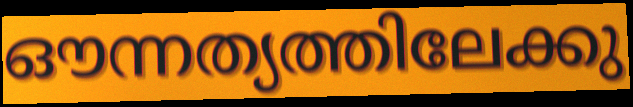
ഔന്നത്യത്തിലേക്കു